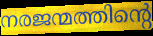
നരജന്മത്തിന്റെ